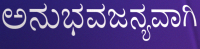
ಅನುಭವಜನ್ಯವಾಗಿ